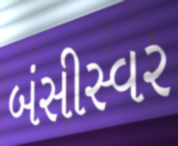
બંસીસ્વર